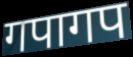
गपागप